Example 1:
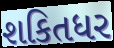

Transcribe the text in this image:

શકિતધર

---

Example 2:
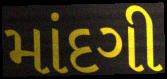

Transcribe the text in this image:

માંદગી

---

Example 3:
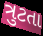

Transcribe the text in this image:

ત્રુટતા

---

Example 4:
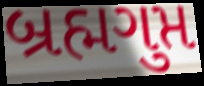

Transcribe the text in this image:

બ્રહ્મગુપ્ત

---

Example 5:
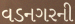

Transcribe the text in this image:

વડનગરની